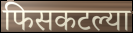
फिसकटल्या